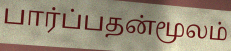
பார்ப்பதன்மூலம்